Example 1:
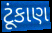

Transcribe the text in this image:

ટૂંકાણ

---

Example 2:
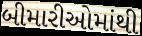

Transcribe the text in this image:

બીમારીઓમાંથી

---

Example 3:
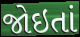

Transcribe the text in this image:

જોઇતાં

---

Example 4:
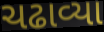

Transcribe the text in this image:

ચઢાવ્યા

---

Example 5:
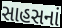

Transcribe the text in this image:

સાહસનાં